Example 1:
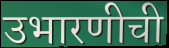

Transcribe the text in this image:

उभारणीची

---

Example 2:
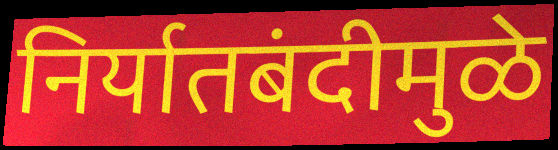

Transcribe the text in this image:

निर्यातबंदीमुळे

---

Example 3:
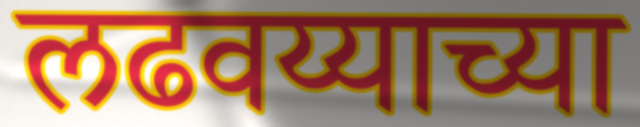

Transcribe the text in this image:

लढवय्याच्या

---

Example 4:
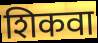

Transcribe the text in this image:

शिकवा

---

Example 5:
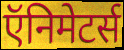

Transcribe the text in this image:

ऍनिमेटर्स